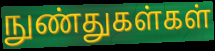
நுண்துகள்கள்